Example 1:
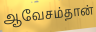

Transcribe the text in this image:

ஆவேசம்தான்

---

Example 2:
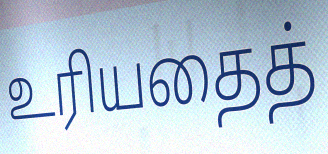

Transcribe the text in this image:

உரியதைத்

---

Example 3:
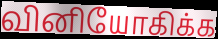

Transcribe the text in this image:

வினியோகிக்க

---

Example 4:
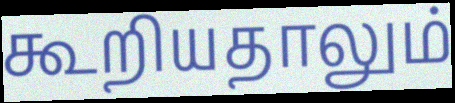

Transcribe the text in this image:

கூறியதாலும்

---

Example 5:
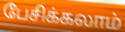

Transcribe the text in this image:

பேசிக்கலாம்